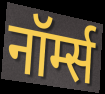
नॉर्म्स